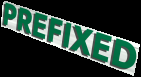
PREFIXED